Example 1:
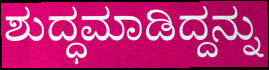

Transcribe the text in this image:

ಶುದ್ಧಮಾಡಿದ್ದನ್ನು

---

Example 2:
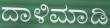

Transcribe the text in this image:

ದಾಳಿಮಾಡಿ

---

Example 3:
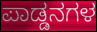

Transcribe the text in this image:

ಪಾಡ್ಡನಗಳ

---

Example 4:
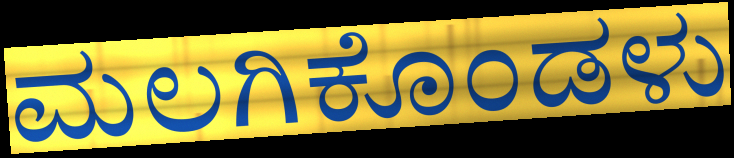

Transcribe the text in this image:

ಮಲಗಿಕೊಂಡಳು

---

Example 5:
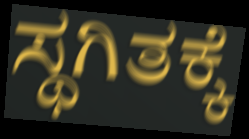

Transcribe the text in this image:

ಸ್ಥಗಿತಕ್ಕೆ